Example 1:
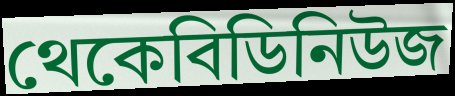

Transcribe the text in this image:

থেকেবিডিনিউজ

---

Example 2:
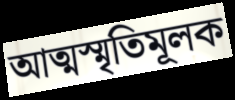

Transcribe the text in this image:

আত্মস্মৃতিমূলক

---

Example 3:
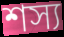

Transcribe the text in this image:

শস্য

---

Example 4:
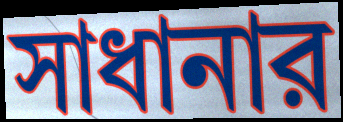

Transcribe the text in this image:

সাধানার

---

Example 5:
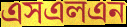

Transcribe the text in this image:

এসএলএন